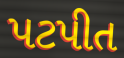
પટપીત